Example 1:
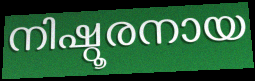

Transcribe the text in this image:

നിഷ്ഠൂരനായ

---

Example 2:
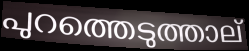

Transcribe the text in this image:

പുറത്തെടുത്താല്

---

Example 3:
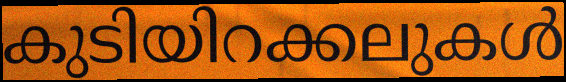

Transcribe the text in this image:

കുടിയിറക്കലുകൾ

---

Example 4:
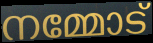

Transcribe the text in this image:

നമ്മോട്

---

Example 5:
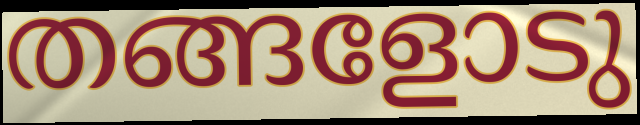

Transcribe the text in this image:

തങ്ങളോടു